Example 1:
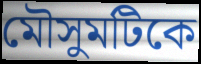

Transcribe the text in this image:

মৌসুমটিকে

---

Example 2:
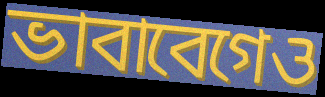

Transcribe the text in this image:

ভাবাবেগেও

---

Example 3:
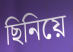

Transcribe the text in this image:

ছিনিয়ে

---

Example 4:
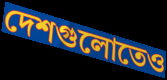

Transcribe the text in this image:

দেশগুলোতেও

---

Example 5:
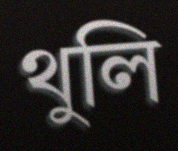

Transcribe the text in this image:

থুলি